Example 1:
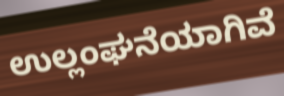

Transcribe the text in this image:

ಉಲ್ಲಂಘನೆಯಾಗಿವೆ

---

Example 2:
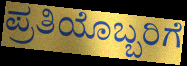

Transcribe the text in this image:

ಪ್ರತಿಯೊಬ್ಬರಿಗೆ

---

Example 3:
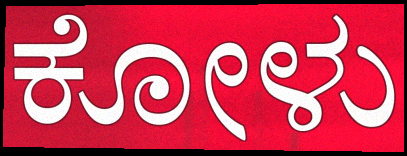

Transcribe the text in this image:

ಕೋಳು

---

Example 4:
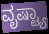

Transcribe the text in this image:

ವೃಷ್ಟ್ಯಾ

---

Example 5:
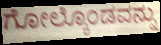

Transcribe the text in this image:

ಗೋಲ್ಕೊಂಡವನ್ನು